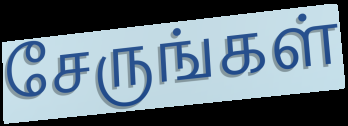
சேருங்கள்